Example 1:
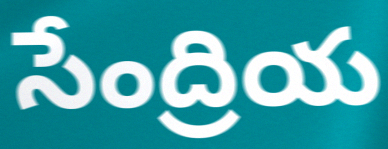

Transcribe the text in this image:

సేంద్రియ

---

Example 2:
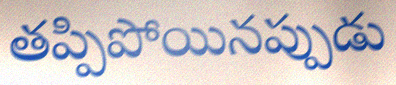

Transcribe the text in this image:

తప్పిపోయినప్పుడు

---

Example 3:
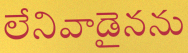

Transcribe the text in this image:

లేనివాడైనను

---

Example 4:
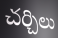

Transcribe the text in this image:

చర్చిలు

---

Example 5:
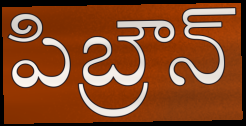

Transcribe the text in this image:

పిబ్రౌన్